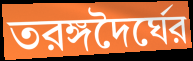
তরঙ্গদৈর্ঘের